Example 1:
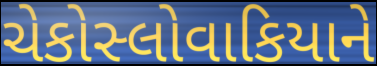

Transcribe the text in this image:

ચેકોસ્લોવાકિયાને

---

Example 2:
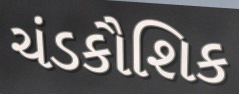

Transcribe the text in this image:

ચંડકૌશિક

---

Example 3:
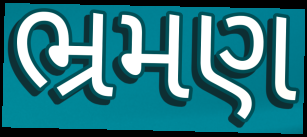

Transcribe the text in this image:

ભ્રમણ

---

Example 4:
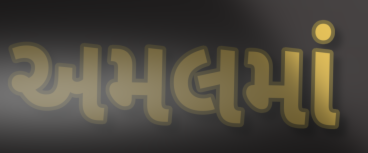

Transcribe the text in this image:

અમલમાં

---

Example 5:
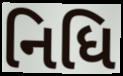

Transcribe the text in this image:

નિધિ